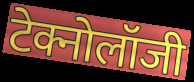
टेक्नोलॉजी